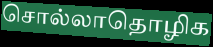
சொல்லாதொழிக